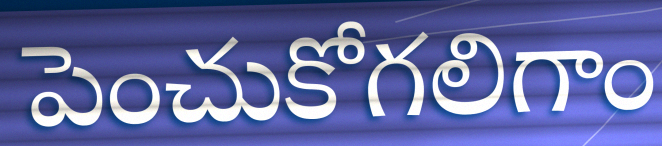
పెంచుకోగలిగాం